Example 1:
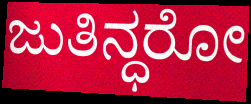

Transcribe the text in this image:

ಜುತಿನ್ಧರೋ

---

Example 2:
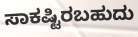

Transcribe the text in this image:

ಸಾಕಷ್ಟಿರಬಹುದು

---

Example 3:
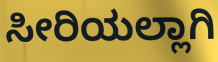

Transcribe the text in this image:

ಸೀರಿಯಲ್ಲಾಗಿ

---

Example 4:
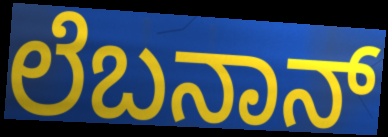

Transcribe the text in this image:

ಲೆಬನಾನ್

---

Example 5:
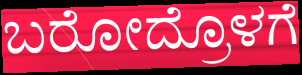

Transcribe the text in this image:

ಬರೋದ್ರೊಳಗೆ